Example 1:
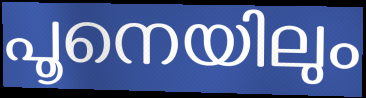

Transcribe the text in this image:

പൂനെയിലും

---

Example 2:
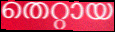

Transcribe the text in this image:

തെറ്റായ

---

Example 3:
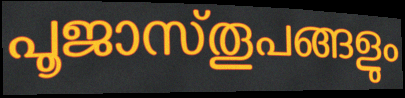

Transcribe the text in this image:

പൂജാസ്‌തൂപങ്ങളും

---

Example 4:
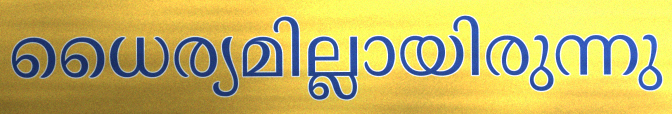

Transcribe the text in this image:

ധൈര്യമില്ലായിരുന്നു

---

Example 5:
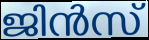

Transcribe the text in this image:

ജിൻസ്